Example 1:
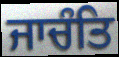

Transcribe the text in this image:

ਜਾਚੰਤਿ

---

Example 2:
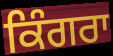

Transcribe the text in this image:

ਕਿੰਗਰਾ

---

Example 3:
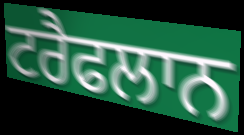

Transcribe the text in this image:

ਟਰੈਫਲਾਨ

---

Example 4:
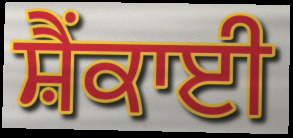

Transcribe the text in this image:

ਸ਼ੈਂਕਾਈ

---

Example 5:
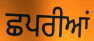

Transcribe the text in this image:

ਛਪਰੀਆਂ